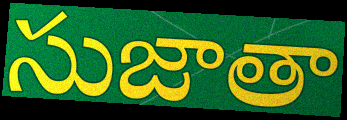
సుజాతా